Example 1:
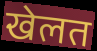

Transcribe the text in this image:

खेलत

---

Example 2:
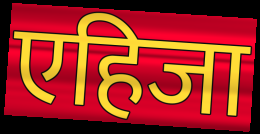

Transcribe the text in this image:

एहिजा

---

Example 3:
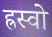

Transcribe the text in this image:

ह्रस्वो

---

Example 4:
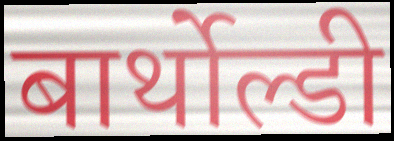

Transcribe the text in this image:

बार्थोल्डी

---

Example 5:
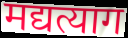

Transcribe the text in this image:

मद्यत्याग